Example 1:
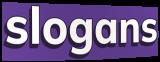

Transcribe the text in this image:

slogans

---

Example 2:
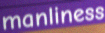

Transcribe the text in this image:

manliness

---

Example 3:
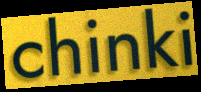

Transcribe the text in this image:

chinki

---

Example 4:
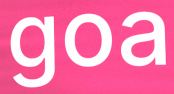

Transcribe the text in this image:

goa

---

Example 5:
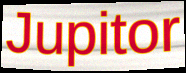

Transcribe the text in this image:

Jupitor